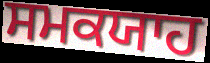
ਸਮਕਯਾਹ